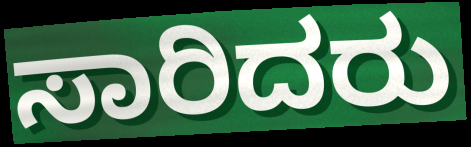
ಸಾರಿದರು